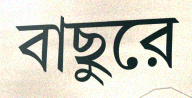
বাছুরে